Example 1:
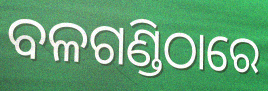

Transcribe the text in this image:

ବଳଗଣ୍ଡିଠାରେ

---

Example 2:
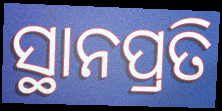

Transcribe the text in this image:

ସ୍ଥାନପ୍ରତି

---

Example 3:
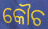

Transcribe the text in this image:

କୌଚ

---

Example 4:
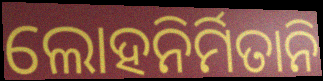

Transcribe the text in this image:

ଲୋହନିର୍ମିତାନି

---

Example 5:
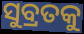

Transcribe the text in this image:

ସୁବ୍ରତକୁ